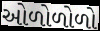
ઓળોળોળો